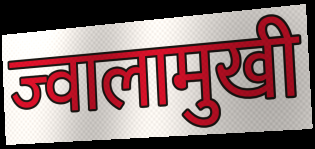
ज्‍वालामुखी